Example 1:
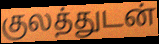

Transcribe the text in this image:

குலத்துடன்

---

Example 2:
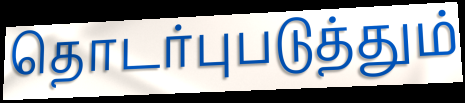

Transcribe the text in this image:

தொடர்புபடுத்தும்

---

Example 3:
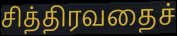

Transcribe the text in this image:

சித்திரவதைச்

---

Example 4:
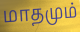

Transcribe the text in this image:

மாதமும்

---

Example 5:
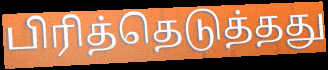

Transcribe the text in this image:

பிரித்தெடுத்தது